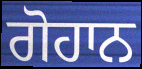
ਗੋਹਾਨ